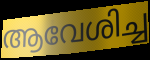
ആവേശിച്ച